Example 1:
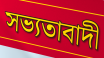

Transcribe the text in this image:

সভ্যতাবাদী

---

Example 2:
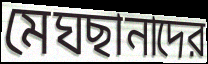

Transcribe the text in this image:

মেঘছানাদের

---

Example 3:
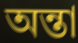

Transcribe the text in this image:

অন্তা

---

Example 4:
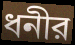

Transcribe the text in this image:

ধনীর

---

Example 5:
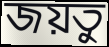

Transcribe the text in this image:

জয়তু